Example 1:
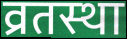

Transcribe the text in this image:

व्रतस्था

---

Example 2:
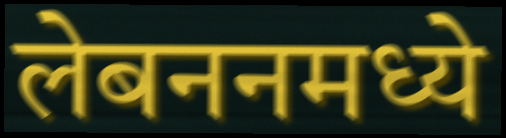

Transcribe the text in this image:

लेबननमध्ये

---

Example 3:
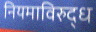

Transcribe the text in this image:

नियमाविरुद्ध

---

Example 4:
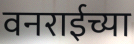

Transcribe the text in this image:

वनराईच्या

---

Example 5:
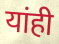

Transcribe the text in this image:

यांही